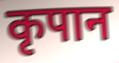
कृपान